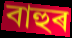
বাহুৰ